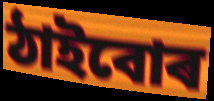
ঠাইবোৰ